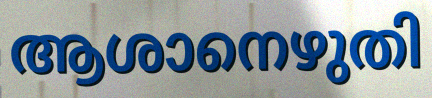
ആശാനെഴുതി